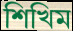
শিখিম